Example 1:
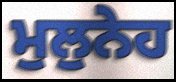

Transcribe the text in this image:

ਮੁਲੁਨੇਹ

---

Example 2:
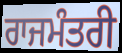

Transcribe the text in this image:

ਰਾਜਮੰਤਰੀ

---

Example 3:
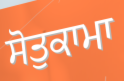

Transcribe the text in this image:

ਸੋਤੁਕਾਮਾ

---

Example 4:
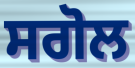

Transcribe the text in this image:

ਸਗੋਲ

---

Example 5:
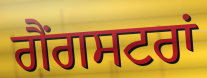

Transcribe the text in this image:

ਗੈਂਗਸਟਰਾਂ